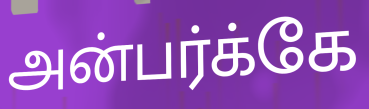
அன்பர்க்கே